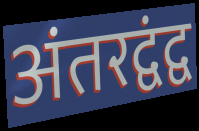
अंतरद्वंद्व